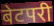
बेटपरी